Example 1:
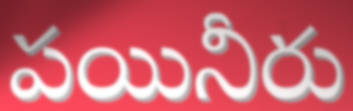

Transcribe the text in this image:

పయినీరు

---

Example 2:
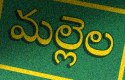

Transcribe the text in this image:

మల్లెల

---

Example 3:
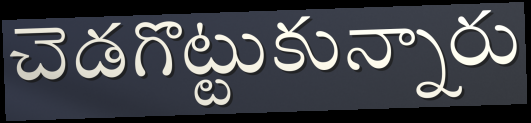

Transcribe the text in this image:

చెడగొట్టుకున్నారు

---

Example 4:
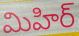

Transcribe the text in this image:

మిహిర్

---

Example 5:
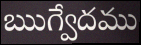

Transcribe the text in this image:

ఋగ్వేదము